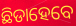
ଛିଡାହେବେ